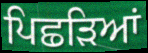
ਪਿਛੜਿਆਂ